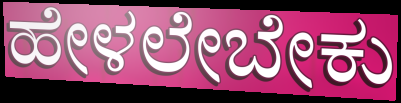
ಹೇಳಲೇಬೇಕು